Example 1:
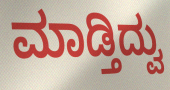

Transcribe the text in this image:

ಮಾಡ್ತಿದ್ವು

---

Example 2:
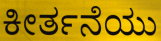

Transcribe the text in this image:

ಕೀರ್ತನೆಯು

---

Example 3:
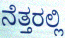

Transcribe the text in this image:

ನೆತ್ತರಲ್ಲಿ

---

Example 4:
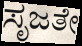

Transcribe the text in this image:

ಸೃಜತೇ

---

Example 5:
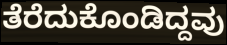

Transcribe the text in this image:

ತೆರೆದುಕೊಂಡಿದ್ದವು